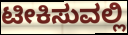
ಟೀಕಿಸುವಲ್ಲಿ